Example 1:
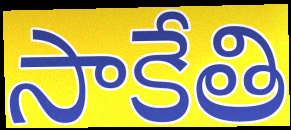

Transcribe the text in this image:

సాకేతి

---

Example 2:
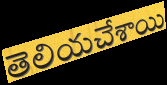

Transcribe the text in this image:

తెలియచేశాయి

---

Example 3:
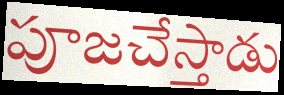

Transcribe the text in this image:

పూజచేస్తాడు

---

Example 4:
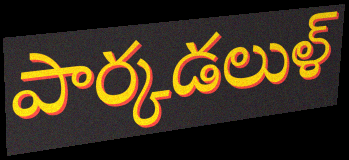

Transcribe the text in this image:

పార్కడలుళ్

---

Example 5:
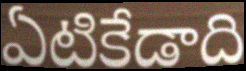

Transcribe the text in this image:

ఏటికేడాది